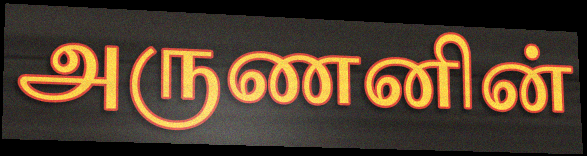
அருணனின்